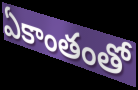
ఏకాంతంతో